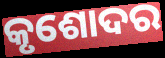
କୃଶୋଦର